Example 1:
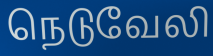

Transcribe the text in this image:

நெடுவேலி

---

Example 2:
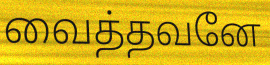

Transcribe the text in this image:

வைத்தவனே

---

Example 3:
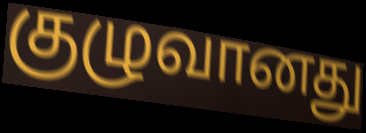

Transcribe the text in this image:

குழுவானது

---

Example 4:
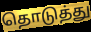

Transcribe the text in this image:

தொடுத்து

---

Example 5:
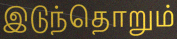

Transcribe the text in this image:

இடுந்தொறும்